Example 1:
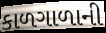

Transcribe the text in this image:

કાળગાળાની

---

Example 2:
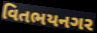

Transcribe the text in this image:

વિતભયનગર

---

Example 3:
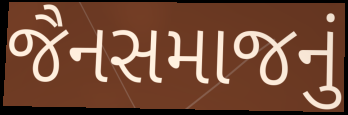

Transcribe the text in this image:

જૈનસમાજનું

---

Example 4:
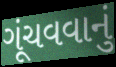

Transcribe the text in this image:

ગૂંચવવાનું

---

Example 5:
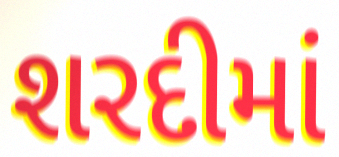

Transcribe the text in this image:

શરદીમાં